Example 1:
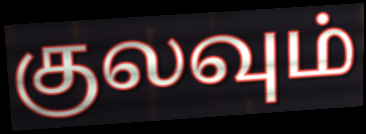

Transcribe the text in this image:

குலவும்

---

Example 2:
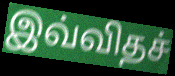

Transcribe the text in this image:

இவ்விதச்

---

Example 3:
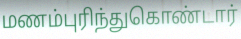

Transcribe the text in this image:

மணம்புரிந்துகொண்டார்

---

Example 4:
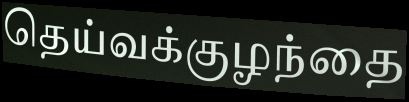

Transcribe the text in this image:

தெய்வக்குழந்தை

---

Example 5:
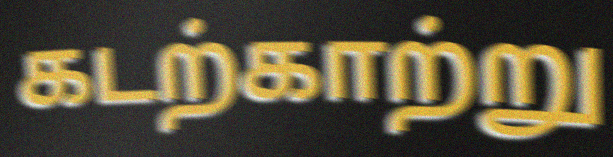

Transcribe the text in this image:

கடற்காற்று